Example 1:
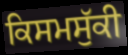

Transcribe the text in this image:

ਕਿਸਮਸੁੱਕੀ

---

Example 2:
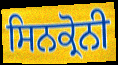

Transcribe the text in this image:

ਸਿਨਕ੍ਰੋਨੀ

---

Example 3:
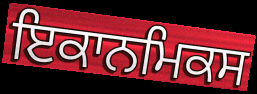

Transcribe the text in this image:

ਇਕਾਨਮਿਕਸ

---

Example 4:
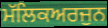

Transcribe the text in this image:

ਮੱਲਿਕਅਰਜੁਨ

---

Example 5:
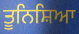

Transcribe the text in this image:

ਤੂਨਿਸ਼ਿਆ